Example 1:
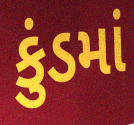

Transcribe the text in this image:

કુંડમાં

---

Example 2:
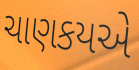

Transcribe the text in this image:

ચાણકયએ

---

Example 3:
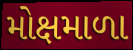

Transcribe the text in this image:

મોક્ષમાળા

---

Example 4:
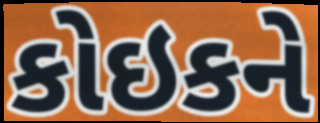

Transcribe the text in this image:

કોઇકને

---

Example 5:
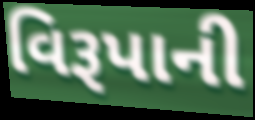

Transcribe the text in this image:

વિરૂપાની